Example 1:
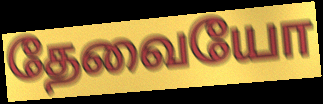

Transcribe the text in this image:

தேவையோ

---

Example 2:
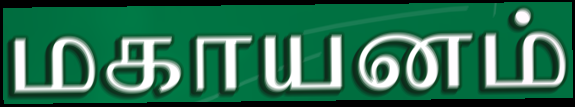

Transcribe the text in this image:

மகாயனம்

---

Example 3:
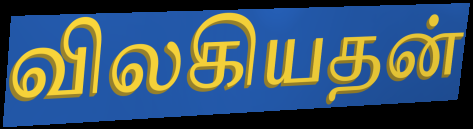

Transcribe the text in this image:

விலகியதன்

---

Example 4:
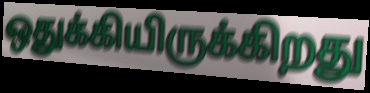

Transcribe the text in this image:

ஒதுக்கியிருக்கிறது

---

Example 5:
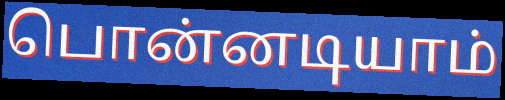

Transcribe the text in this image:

பொன்னடியாம்